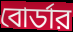
বোর্ডার